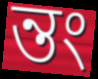
ন্তং